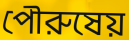
পৌরুষেয়